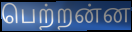
பெற்றன்ன